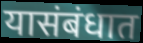
यासंबंधात